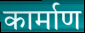
कार्माण